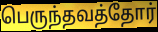
பெருந்தவத்தோர்